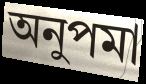
অনুপমা